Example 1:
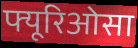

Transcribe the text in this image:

फ्यूरिओसा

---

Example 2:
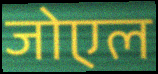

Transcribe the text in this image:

जोएल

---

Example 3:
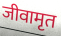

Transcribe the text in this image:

जीवामृत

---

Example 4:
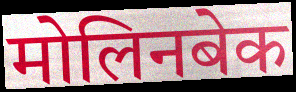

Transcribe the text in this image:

मोलिनबेक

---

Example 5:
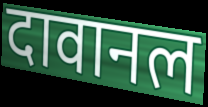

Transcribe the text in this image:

दावानल